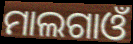
ମାଲଗାଓଁ